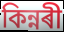
কিন্নৰী